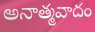
అనాత్మవాదం